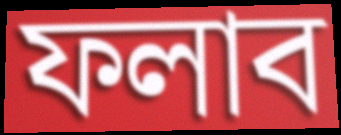
ফলাব